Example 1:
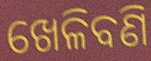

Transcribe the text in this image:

ଖେଳିବଣି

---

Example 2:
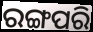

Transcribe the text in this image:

ରଙ୍ଗପରି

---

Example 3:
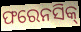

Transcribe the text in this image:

ଫରେନସିକ୍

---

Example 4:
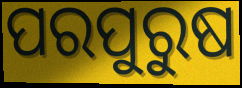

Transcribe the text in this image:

ପରପୁରୁଷ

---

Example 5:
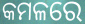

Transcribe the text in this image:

କମଳରେ